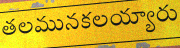
తలమునకలయ్యారు